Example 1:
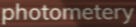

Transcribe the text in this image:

photometery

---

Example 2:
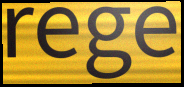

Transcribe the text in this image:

rege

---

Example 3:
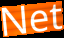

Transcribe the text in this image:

Net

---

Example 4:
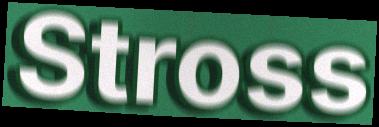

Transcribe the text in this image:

Stross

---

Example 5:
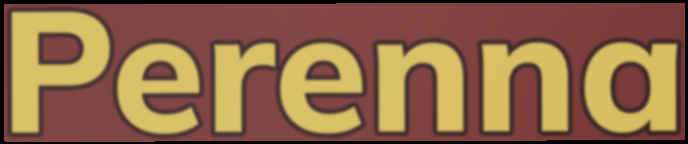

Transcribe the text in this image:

Perenna